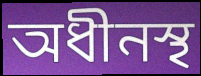
অধীনস্থ